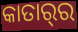
କାତାର୍‌ର